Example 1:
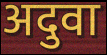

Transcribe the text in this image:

अदुवा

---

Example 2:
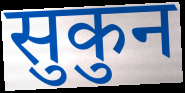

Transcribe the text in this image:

सुकुन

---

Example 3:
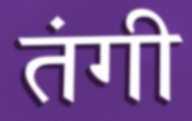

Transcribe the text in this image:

तंगी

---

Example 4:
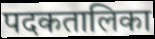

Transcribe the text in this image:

पदकतालिका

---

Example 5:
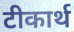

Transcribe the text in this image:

टीकार्थ